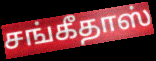
சங்கீதாஸ்